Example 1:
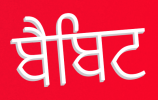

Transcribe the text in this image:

ਬੈਬਿਟ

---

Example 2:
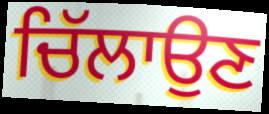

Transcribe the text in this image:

ਚਿੱਲਾਉਣ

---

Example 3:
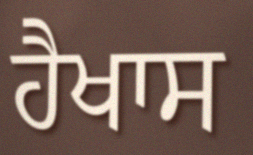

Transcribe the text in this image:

ਹੈਖਾਸ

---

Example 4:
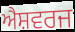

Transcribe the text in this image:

ਐਸ਼ਵਰਜ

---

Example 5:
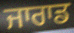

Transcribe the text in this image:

ਜਾਰਾਡ